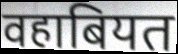
वहाबियत